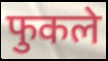
फुकले